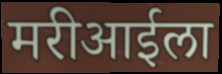
मरीआईला